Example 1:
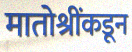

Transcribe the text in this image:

मातोश्रींकडून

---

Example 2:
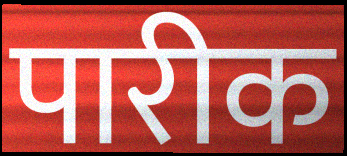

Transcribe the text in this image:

पारीक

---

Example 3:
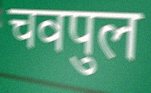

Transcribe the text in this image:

चवपुल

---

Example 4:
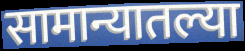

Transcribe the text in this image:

सामान्यातल्या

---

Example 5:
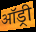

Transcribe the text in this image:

ऑड्री